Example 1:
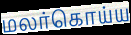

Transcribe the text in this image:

மலர்கொய்ய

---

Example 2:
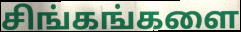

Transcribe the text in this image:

சிங்கங்களை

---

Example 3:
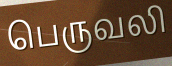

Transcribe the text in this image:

பெருவலி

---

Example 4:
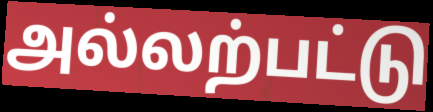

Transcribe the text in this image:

அல்லற்பட்டு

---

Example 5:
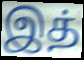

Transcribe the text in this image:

இத்